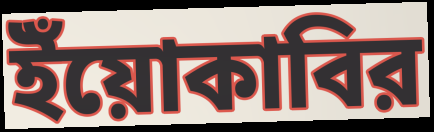
ইঁয়োকাবির